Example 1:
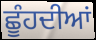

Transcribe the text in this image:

ਛੂੰਹਦੀਆਂ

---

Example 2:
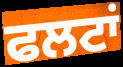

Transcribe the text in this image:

ਫਲਟਾਂ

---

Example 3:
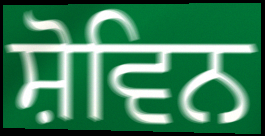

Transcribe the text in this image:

ਸ਼ੋਵਿਨ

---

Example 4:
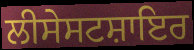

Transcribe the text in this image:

ਲੀਸੇਸਟਸ਼ਾਇਰ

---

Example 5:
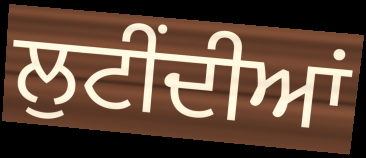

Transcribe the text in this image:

ਲੁਟੀਂਦੀਆਂ